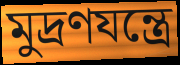
মুদ্রণযন্ত্রে